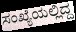
ಸಂಖ್ಯೆಯಲ್ಲಿದ್ದ